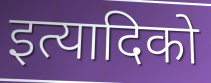
इत्यादिको